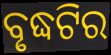
ବୃଦ୍ଧଟିର